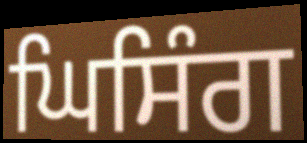
ਘਿਸਿੰਗ